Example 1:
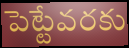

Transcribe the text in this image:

పెట్టేవరకు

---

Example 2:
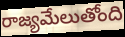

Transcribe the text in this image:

రాజ్యమేలుతోంది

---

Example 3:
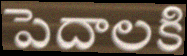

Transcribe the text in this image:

పెదాలకి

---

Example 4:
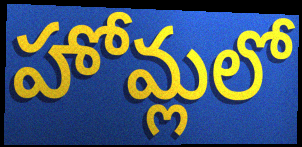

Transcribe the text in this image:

హోమ్లలో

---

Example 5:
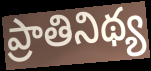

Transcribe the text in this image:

ప్రాతినిథ్య